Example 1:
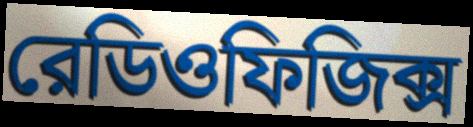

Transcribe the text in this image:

রেডিওফিজিক্স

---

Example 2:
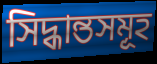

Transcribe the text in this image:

সিদ্ধান্তসমূহ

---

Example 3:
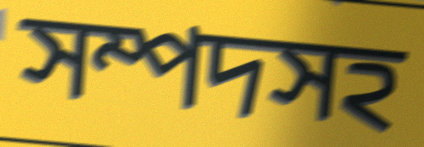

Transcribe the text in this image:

সম্পদসহ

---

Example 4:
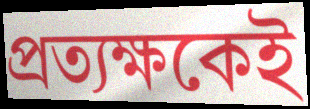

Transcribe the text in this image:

প্রত্যক্ষকেই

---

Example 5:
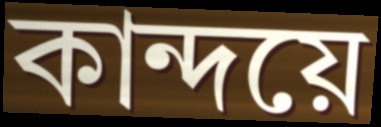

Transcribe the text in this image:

কান্দয়ে